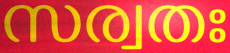
സര്വതഃ